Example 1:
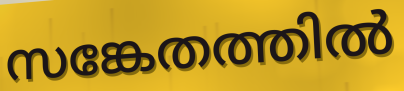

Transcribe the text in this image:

സങ്കേതത്തിൽ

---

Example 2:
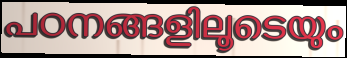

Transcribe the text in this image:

പഠനങ്ങളിലൂടെയും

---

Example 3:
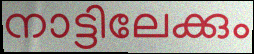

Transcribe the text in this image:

നാട്ടിലേക്കും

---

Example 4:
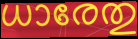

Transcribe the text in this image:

ധാരേതു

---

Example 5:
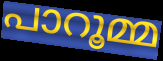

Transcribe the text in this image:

പാറൂമ്മ